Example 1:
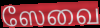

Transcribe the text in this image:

ஸேவை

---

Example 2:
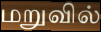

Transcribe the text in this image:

மறுவில்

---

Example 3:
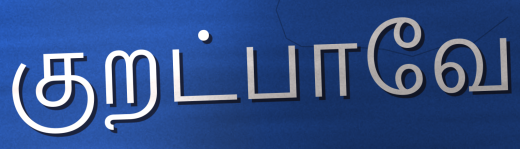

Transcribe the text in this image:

குறட்பாவே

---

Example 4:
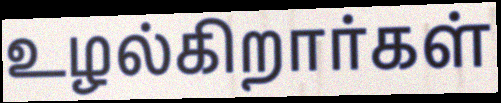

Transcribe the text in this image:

உழல்கிறார்கள்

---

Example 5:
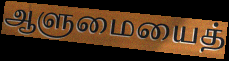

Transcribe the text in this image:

ஆளுமையைத்